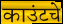
काउंटचे